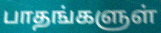
பாதங்களுள்